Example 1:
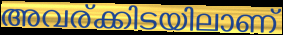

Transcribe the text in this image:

അവര്ക്കിടയിലാണ്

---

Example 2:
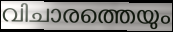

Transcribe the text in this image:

വിചാരത്തെയും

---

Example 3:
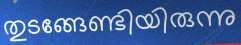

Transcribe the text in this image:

തുടങ്ങേണ്ടിയിരുന്നു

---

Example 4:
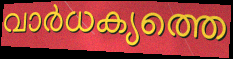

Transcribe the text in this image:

വാർധക്യത്തെ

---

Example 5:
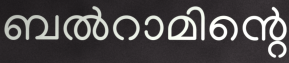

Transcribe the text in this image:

ബൽറാമിന്റെ